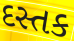
દસ્તક